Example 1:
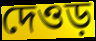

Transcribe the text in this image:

দেওড়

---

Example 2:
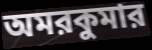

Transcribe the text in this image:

অমরকুমার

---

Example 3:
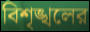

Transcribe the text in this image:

বিশৃঙ্খলের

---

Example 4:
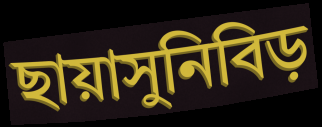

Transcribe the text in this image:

ছায়াসুনিবিড়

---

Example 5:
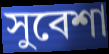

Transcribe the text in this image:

সুবেশা